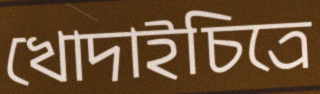
খোদাইচিত্রে